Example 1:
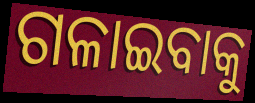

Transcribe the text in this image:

ଗଳାଇବାକୁ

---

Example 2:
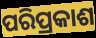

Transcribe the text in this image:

ପରିପ୍ରକାଶ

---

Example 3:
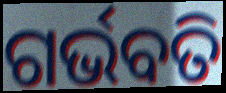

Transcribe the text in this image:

ଗର୍ଭବତି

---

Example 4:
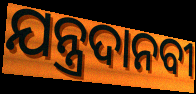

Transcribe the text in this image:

ଯନ୍ତ୍ରଦାନବୀ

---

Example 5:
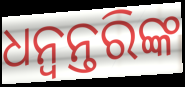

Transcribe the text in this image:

ଧନ୍ୱନ୍ତରିଙ୍କ